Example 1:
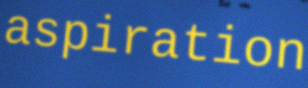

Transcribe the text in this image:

aspiration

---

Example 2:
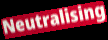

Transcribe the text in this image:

Neutralising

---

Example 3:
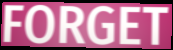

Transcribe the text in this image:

FORGET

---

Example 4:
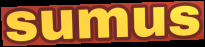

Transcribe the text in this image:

sumus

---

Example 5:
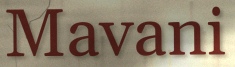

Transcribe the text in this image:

Mavani